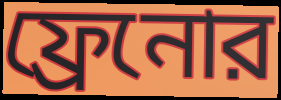
ফ্রেনোর